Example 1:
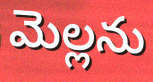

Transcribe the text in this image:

మెల్లను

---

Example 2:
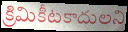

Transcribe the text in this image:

క్రిమికీటకాదులని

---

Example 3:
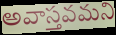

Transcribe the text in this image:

అవాస్తవమని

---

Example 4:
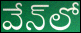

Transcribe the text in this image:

వేన్‌లో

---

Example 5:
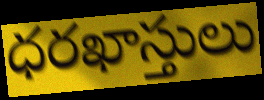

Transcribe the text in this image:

ధరఖాస్తులు